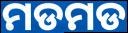
ମଡମଡ